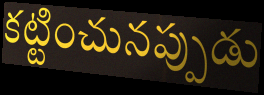
కట్టించునప్పుడు